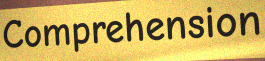
Comprehension